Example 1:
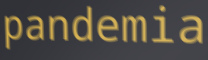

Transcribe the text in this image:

pandemia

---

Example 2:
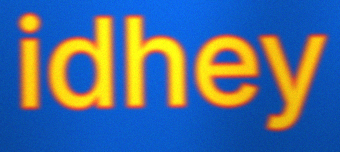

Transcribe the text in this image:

idhey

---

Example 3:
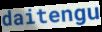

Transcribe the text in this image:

daitengu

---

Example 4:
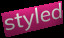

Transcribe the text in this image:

styled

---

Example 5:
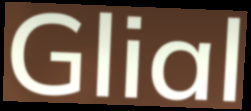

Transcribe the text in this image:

Glial